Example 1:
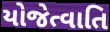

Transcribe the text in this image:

યોજેત્વાતિ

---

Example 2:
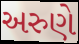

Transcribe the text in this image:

અરુણે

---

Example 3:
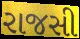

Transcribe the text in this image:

રાજસી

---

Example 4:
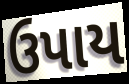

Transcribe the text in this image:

ઉપાય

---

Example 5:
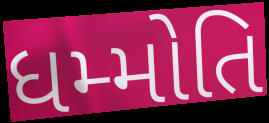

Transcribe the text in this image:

ધમ્મોતિ